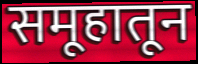
समूहातून